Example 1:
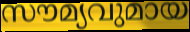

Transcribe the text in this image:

സൗമ്യവുമായ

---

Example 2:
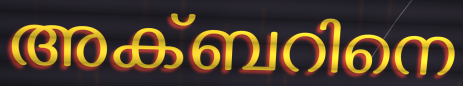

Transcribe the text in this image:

അക്ബറിനെ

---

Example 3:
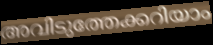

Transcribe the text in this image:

അവിടുത്തേക്കറിയാം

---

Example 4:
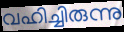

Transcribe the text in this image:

വഹിച്ചിരുന്നു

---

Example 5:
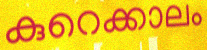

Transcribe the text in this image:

കുറെക്കാലം